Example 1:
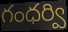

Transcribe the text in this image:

గంధర్వి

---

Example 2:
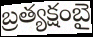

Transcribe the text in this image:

బ్రత్యక్షంబై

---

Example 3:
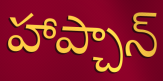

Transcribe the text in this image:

హాప్చాన్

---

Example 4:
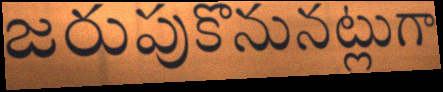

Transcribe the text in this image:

జరుపుకొనునట్లుగా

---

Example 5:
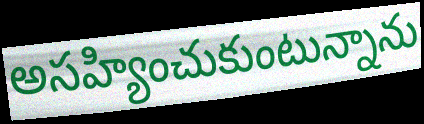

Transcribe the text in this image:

అసహ్యించుకుంటున్నాను